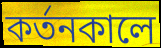
কর্তনকালে